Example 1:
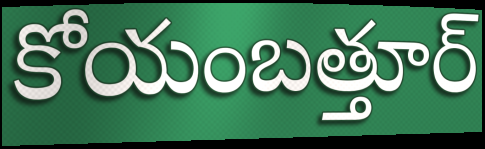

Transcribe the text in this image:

కోయంబత్తూర్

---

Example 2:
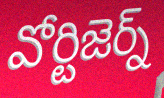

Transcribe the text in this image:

వోర్టిజెర్న్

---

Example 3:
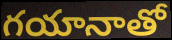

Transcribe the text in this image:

గయానాతో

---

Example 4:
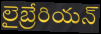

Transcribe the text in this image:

లైబ్రేరియన్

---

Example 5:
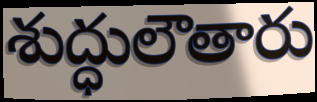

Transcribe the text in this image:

శుద్ధులౌతారు